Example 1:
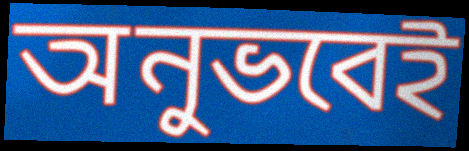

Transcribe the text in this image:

অনুভবেই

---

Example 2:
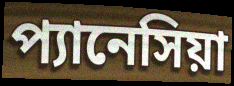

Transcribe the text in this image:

প্যানেসিয়া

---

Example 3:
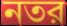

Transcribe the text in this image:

নতর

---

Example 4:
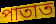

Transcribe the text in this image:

পাতাত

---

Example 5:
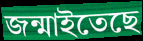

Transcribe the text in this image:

জন্মাইতেছে